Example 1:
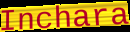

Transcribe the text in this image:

Inchara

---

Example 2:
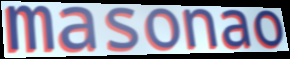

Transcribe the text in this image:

masonao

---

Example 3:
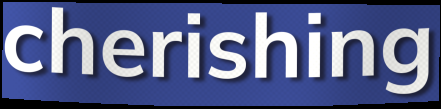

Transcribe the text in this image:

cherishing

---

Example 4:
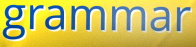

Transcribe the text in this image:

grammar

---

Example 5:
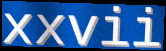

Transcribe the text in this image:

xxvii